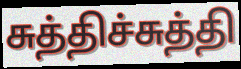
சுத்திச்சுத்தி